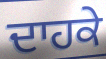
ਦਾਹਕੇ